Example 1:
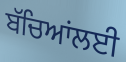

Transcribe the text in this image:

ਬੱਚਿਆਂਲਈ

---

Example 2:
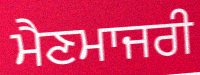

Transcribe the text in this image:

ਮੈਣਮਾਜਰੀ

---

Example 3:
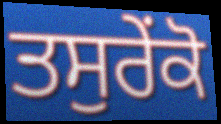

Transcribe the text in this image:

ਤਸੁਰੇਂਕੋ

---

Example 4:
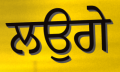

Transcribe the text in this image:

ਲਉਗੇ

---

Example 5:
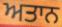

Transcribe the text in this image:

ਅਤਾਨ